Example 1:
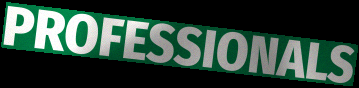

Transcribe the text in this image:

PROFESSIONALS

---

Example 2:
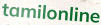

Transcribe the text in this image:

tamilonline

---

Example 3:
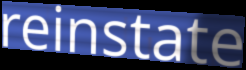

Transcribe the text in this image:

reinstate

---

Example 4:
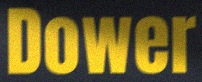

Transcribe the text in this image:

Dower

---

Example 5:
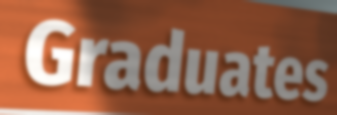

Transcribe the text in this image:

Graduates